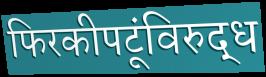
फिरकीपटूंविरुद्ध